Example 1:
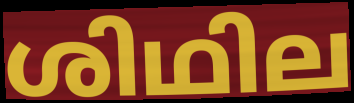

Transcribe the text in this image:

ശിഥില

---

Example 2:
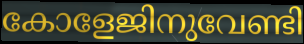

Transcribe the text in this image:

കോളേജിനുവേണ്ടി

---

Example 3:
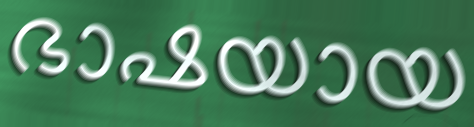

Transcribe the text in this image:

ഭാഷയായ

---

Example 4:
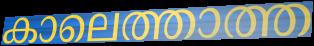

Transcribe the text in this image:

കാലെത്താത്ത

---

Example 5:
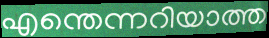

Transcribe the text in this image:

എന്തെന്നറിയാത്ത